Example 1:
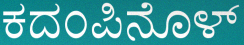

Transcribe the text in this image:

ಕದಂಪಿನೊಳ್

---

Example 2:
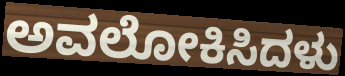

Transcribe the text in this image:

ಅವಲೋಕಿಸಿದಳು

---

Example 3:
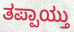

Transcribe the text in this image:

ತಪ್ಪಾಯ್ತು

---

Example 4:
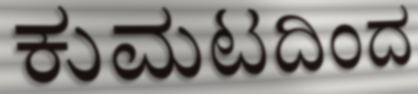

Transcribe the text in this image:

ಕುಮಟದಿಂದ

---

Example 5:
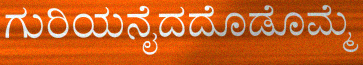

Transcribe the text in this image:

ಗುರಿಯನೈದದೊಡೊಮ್ಮೆ